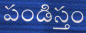
పండిస్తం